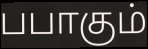
பபாகும்